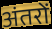
अंतरों